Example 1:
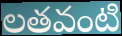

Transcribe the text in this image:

లతవంటి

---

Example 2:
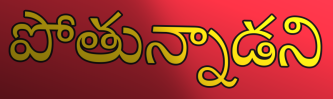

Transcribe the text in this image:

పోతున్నాడని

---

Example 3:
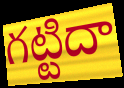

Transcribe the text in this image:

గట్టిదా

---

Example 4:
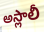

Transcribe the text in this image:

అస్లాలీ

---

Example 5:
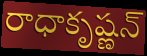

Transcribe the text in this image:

రాధాకృష్ణన్